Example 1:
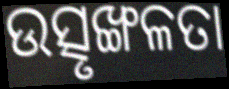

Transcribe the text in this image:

ଉତ୍ସୃଙ୍ଖଳତା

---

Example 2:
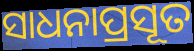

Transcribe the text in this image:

ସାଧନାପ୍ରସୂତ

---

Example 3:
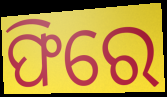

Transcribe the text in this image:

ଫିରେ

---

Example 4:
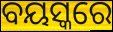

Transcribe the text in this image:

ବୟସ୍କରେ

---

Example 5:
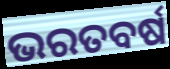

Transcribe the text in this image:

ଭରତବର୍ଷ